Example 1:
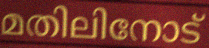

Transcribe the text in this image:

മതിലിനോട്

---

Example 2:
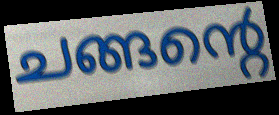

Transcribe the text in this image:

ചങ്ങന്റെ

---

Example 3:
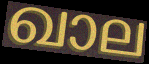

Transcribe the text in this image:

ഖാല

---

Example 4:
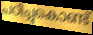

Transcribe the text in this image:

പഠിച്ചുകൊണ്ട്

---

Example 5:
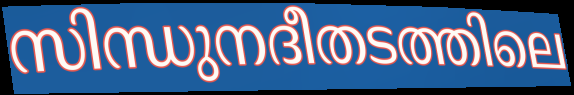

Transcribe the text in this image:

സിന്ധുനദീതടത്തിലെ